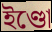
ইণ্ডো